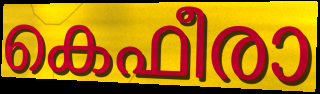
കെഫീരാ